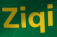
Ziqi